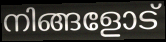
നിങ്ങളോട്